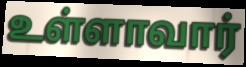
உள்ளாவார்